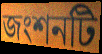
জংশনটি